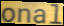
onal